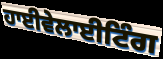
ਹਾਈਵੇਲਾਈਟਿੰਗ